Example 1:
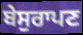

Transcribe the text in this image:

ਬੇਸੁਰਾਪਣ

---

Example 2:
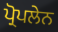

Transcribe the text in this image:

ਪ੍ਰੋਪਲੇਨ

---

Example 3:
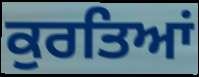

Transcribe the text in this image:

ਕੁਰਤਿਆਂ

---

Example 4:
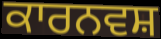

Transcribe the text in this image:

ਕਾਰਨਵਸ਼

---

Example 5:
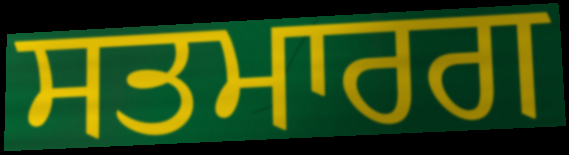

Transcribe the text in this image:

ਸਤਮਾਰਗ